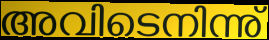
അവിടെനിന്നു്